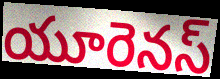
యూరెనస్